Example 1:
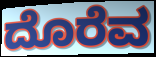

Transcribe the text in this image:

ದೊರೆವ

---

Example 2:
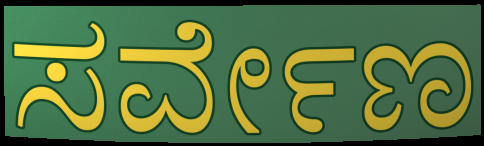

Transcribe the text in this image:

ಸರ್ವೇಣ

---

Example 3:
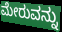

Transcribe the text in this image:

ಮೇರುವನ್ನು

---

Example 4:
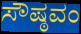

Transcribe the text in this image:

ಸೌಷ್ಠವಂ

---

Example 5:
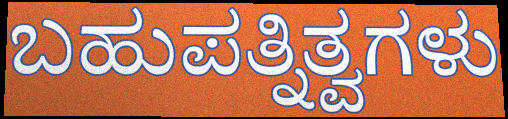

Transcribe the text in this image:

ಬಹುಪತ್ನಿತ್ವಗಳು